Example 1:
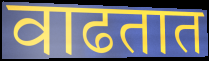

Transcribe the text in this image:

वाढतात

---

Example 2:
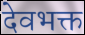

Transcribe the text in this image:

देवभक्त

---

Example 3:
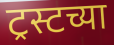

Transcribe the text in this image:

ट्रस्टच्या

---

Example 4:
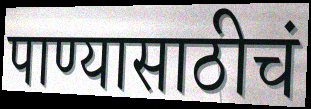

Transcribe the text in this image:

पाण्यासाठीचं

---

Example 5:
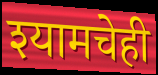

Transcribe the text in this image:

श्यामचेही